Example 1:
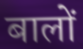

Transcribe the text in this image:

बालों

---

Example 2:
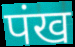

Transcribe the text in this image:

पंख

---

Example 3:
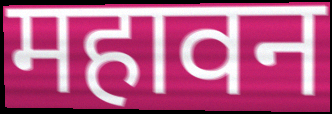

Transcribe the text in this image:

महावन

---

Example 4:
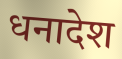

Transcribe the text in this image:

धनादेश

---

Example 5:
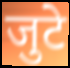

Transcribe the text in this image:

जुटे